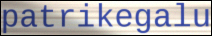
patrikegalu